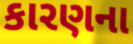
કારણના